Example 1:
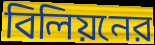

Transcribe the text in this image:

বিলিয়নের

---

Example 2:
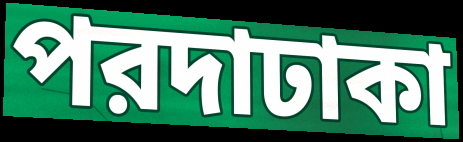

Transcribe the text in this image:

পরদাঢাকা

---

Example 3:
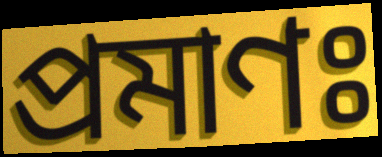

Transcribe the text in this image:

প্রমাণঃ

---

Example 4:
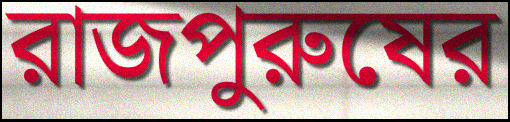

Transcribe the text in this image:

রাজপুরুষের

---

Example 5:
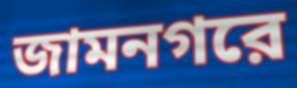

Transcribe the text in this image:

জামনগরে